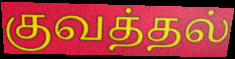
குவத்தல்